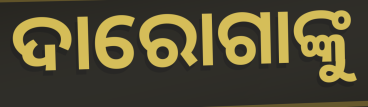
ଦାରୋଗାଙ୍କୁ